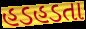
હડહડતા